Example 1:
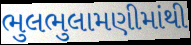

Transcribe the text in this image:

ભુલભુલામણીમાંથી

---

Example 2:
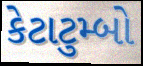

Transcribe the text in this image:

કેટાટુમ્બો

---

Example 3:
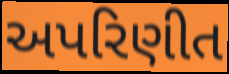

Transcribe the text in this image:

અપરિણીત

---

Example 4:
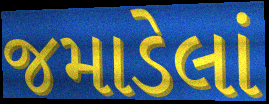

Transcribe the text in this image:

જમાડેલાં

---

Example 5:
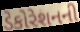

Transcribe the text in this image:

ડેકોરેશનની